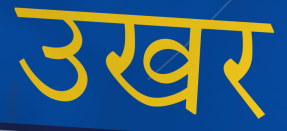
उखर